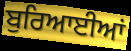
ਬੁਰਿਆਈਆਂ